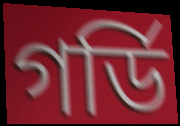
গর্ডি